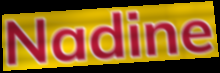
Nadine